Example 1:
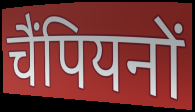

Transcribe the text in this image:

चैंपियनों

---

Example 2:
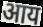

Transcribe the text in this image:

आय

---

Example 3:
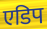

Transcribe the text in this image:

एडिप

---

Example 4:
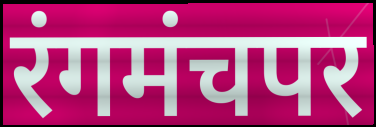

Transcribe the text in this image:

रंगमंचपर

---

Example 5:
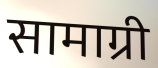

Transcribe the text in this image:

सामाग्री